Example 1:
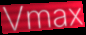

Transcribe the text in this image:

Vmax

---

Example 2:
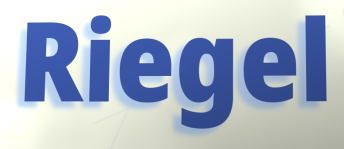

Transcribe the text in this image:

Riegel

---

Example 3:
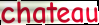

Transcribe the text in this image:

chateau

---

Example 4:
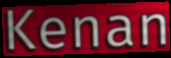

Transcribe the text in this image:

Kenan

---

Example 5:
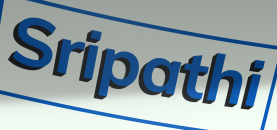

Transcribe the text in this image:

Sripathi